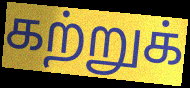
கற்றுக்